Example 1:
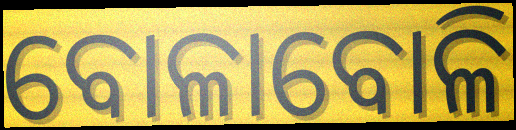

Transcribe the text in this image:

ବୋଳାବୋଳି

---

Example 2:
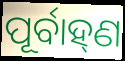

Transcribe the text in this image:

ପୂର୍ବାହ୍‌ଣ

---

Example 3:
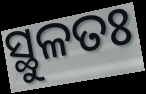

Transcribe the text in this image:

ସ୍ଥୁଳତଃ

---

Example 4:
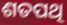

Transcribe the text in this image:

ଶତପଥି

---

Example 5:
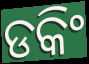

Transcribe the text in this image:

ଡକିଂ